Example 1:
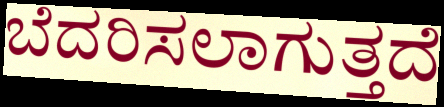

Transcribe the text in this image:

ಬೆದರಿಸಲಾಗುತ್ತದೆ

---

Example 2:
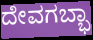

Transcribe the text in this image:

ದೇವಗಬ್ಭಾ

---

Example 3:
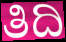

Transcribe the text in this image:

ತಿದಿ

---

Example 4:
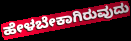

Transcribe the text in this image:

ಹೇಳಬೇಕಾಗಿರುವುದು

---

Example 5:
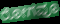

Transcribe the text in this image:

ರೋಗವೂ